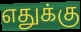
எதுக்கு